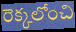
రెక్కలోంచి